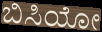
ಬಿಸಿಯೋ